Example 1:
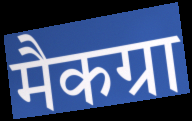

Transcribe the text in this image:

मैकग्रा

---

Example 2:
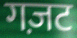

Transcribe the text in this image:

गज़ट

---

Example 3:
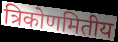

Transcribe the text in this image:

त्रिकोणमितीय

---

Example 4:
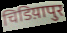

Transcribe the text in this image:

चिडिय़ापुर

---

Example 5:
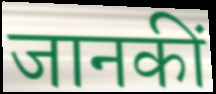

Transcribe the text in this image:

जानकीं